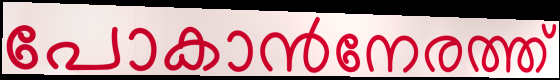
പോകാൻനേരത്ത്